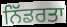
ਨਿੱਡਰਤਾ